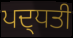
ਪਦ੍ਧਤੀ